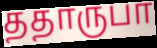
ததாருபா